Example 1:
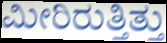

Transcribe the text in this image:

ಮೀರಿರುತ್ತಿತ್ತು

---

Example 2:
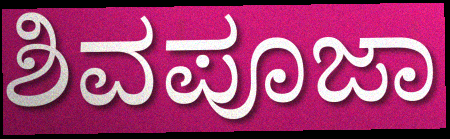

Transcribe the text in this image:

ಶಿವಪೂಜಾ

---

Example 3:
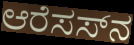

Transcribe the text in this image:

ಆರೆಸಸ್‌ನ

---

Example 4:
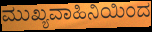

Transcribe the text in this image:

ಮುಖ್ಯವಾಹಿನಿಯಿಂದ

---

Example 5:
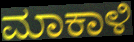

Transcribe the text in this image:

ಮಾಕಾಳಿ